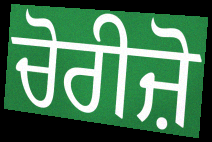
ਚੋਰੀਜ਼ੋ